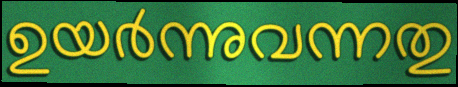
ഉയർന്നുവന്നതു